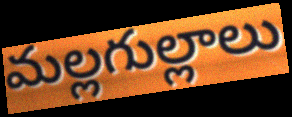
మల్లగుల్లాలు